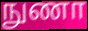
நுணா